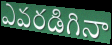
ఎవరడిగినా